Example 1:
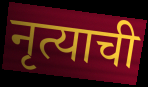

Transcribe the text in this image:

नृत्याची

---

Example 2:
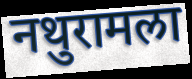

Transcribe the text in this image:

नथुरामला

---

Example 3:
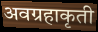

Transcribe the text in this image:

अवग्रहाकृती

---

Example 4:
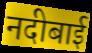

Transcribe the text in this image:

नदीबाई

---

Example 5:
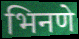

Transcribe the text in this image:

भिनणे